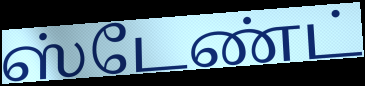
ஸ்டேண்ட்